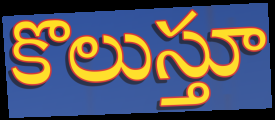
కొలుస్తూ